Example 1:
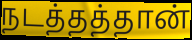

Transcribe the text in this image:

நடத்தத்தான்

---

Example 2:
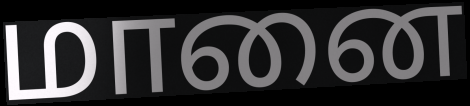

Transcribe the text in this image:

மானை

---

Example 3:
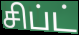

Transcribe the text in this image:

சிப்ட்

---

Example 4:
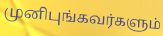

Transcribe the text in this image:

முனிபுங்கவர்களும்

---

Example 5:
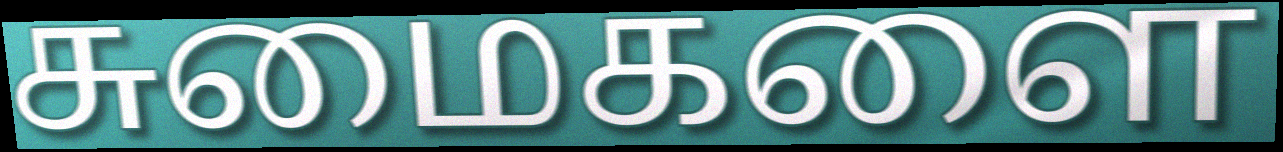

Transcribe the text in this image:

சுமைகளை